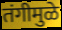
तंगीमुळे